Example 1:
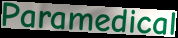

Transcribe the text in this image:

Paramedical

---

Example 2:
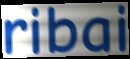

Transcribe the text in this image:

ribai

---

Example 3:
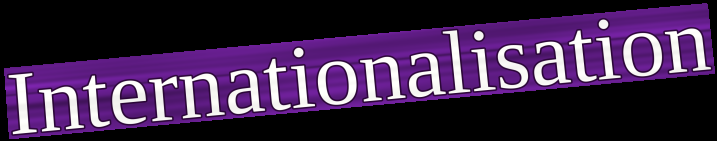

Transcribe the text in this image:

Internationalisation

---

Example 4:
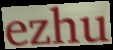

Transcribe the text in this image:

ezhu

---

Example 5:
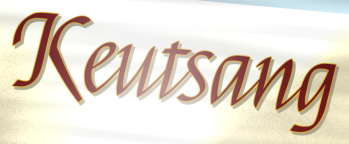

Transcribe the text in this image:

Keutsang